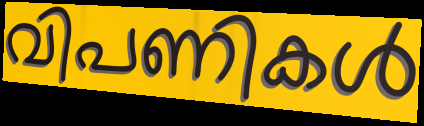
വിപണികൾ